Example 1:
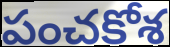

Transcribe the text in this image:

పంచకోశ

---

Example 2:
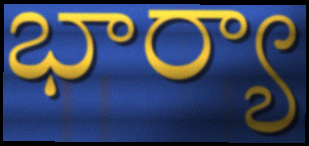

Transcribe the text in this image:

భార్యా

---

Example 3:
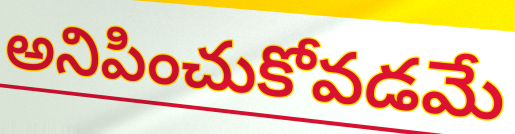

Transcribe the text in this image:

అనిపించుకోవడమే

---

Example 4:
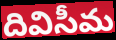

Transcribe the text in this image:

దివిసీమ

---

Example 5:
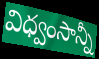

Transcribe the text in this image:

విధ్వంసాన్నీ